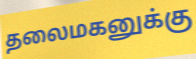
தலைமகனுக்கு